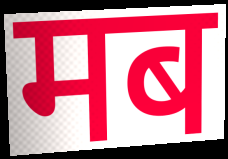
मब